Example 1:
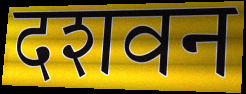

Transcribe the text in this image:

दशवन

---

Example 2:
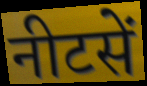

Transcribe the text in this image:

नीटसें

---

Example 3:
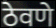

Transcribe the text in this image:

ठेवणे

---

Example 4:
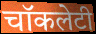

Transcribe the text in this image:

चॉकलेटी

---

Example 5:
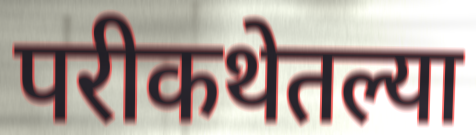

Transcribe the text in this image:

परीकथेतल्या